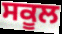
ਸਕੂਲ